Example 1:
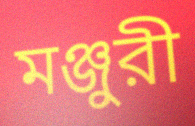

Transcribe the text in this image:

মঞ্জুরী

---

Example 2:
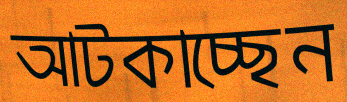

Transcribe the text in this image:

আটকাচ্ছেন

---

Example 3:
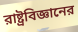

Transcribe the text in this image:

রাষ্ট্রবিজ্ঞানের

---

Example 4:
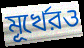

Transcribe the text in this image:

মূর্খেরও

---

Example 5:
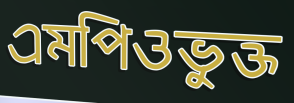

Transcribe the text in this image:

এমপিওভুক্ত